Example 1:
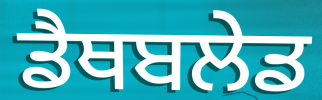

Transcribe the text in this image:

ਡੈਥਬਲੇਡ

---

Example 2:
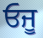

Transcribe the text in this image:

ਓਜੂ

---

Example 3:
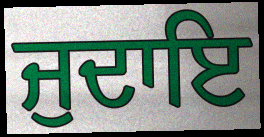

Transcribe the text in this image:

ਜੁਦਾਇ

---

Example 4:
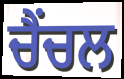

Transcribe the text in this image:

ਚੈਂਚਲ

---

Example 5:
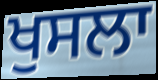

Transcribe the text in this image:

ਖੁਸਲਾ